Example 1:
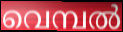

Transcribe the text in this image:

വെമ്പൽ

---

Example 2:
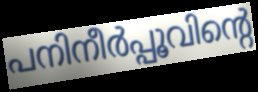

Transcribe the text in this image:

പനിനീർപ്പൂവിന്റെ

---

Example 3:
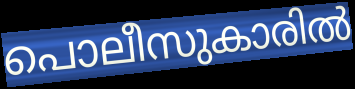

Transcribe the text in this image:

പൊലീസുകാരിൽ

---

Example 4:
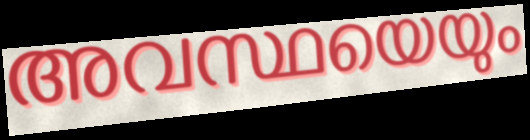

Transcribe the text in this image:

അവസ്ഥയെയും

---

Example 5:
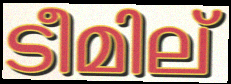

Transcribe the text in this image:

ടീമില്